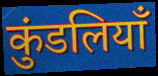
कुंडलियाँ